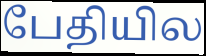
பேதியில